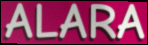
ALARA